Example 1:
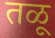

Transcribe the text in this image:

तळू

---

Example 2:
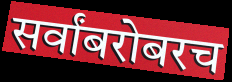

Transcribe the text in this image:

सर्वांबरोबरच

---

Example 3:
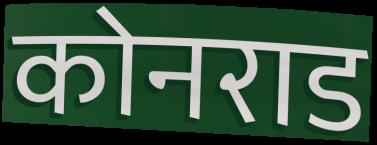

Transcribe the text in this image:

कोनराड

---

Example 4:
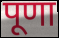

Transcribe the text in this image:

पूणा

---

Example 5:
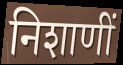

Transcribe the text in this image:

निशाणीं